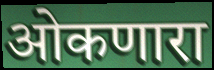
ओकणारा